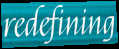
redefining